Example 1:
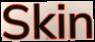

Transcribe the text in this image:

Skin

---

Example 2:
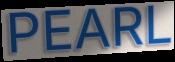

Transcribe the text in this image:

PEARL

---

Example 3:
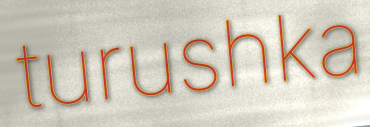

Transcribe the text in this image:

turushka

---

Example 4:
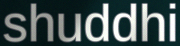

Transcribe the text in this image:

shuddhi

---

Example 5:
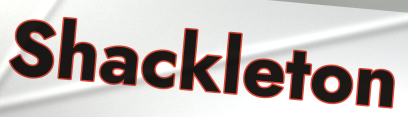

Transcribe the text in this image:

Shackleton